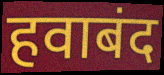
हवाबंद